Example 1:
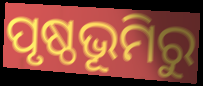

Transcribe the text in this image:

ପୃଷ୍ଠଭୂମିରୁ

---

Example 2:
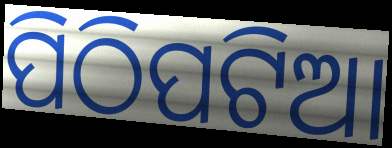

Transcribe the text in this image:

ପିଠିପଟିଆ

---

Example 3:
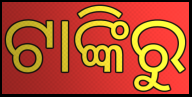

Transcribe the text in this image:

ଟାଙ୍କିରୁ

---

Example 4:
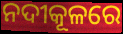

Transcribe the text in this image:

ନଦୀକୂଳରେ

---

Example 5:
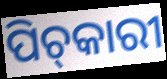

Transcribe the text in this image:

ପିଚ୍‌କାରୀ